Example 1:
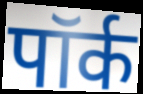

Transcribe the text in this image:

पॉर्क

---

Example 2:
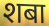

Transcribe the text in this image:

शबा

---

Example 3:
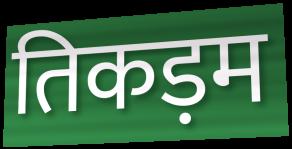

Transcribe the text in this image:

तिकड़म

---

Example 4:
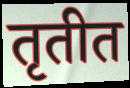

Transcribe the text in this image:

तृतीत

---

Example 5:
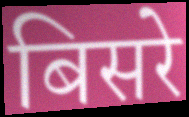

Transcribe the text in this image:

बिसरे